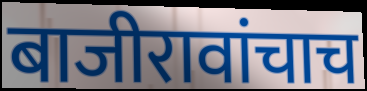
बाजीरावांचाच